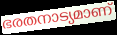
ഭരതനാട്യമാണ്